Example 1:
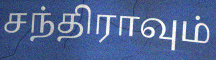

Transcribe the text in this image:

சந்திராவும்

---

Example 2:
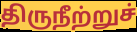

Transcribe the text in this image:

திருநீற்றுச்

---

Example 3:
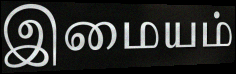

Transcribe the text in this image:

இமையம்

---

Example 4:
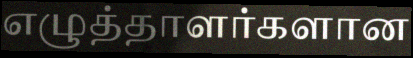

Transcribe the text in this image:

எழுத்தாளர்களான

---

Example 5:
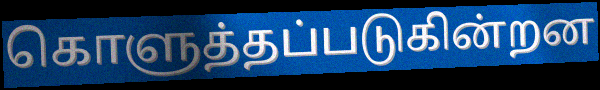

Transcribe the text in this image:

கொளுத்தப்படுகின்றன